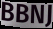
BBNJ